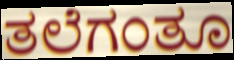
ತಲೆಗಂತೂ